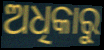
ଅଧିକାରୁ